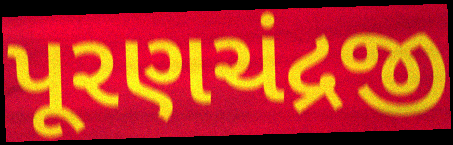
પૂરણચંદ્રજી